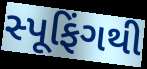
સ્પૂફિંગથી